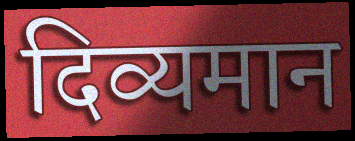
दिव्यमान